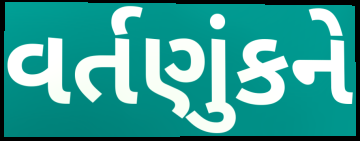
વર્તણુંકને